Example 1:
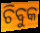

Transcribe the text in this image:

ଚିବୁକ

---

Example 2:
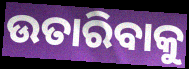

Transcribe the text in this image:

ଉତାରିବାକୁ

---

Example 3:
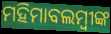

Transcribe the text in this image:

ମହିମାବଲମ୍ବୀଙ୍କ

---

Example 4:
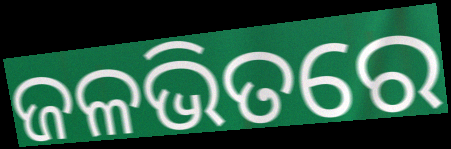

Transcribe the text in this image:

ଜଳଭିତରେ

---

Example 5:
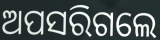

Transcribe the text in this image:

ଅପସରିଗଲେ